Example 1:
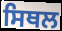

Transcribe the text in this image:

ਸਿਥਲ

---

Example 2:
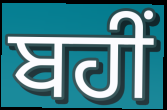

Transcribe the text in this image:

ਬਹੀਂ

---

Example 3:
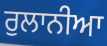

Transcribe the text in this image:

ਰੁਲਾਨੀਆ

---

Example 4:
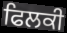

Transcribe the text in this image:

ਫਿਲਕੀ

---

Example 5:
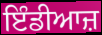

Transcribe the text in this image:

ਇੰਡੀਆਜ਼